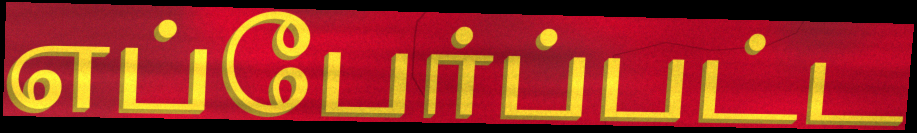
எப்பேர்ப்பட்ட